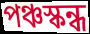
পঞ্চস্কন্ধ